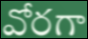
వోరగా